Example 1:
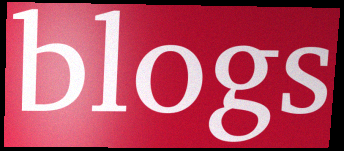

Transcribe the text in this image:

blogs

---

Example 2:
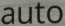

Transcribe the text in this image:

auto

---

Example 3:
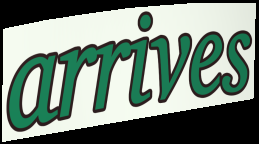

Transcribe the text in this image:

arrives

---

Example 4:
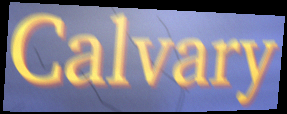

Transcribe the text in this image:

Calvary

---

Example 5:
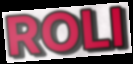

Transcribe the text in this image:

ROLI